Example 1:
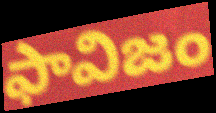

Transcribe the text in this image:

ఫావిజం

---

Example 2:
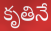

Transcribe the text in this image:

కృతినే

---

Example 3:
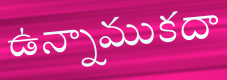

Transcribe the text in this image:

ఉన్నాముకదా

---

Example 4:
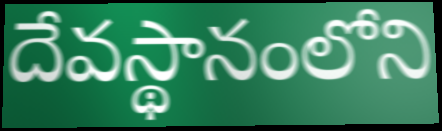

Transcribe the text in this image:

దేవస్థానంలోని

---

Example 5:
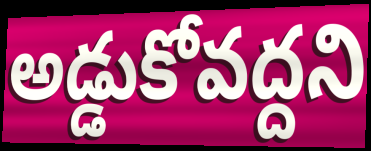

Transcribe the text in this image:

అడ్డుకోవద్దని